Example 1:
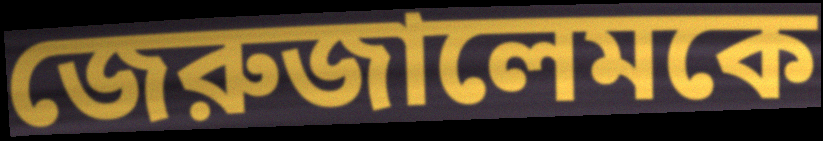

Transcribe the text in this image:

জেরুজালেমকে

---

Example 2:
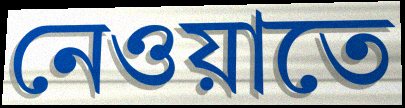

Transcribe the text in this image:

নেওয়াতে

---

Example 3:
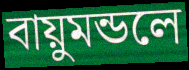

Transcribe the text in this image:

বায়ুমন্ডলে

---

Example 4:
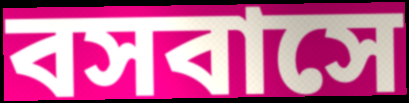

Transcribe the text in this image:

বসবাসে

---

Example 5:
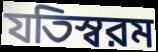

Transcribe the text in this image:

যতিস্বরম